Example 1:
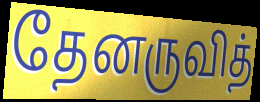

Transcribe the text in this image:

தேனருவித்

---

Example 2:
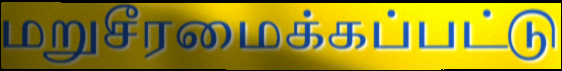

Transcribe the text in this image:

மறுசீரமைக்கப்பட்டு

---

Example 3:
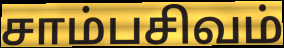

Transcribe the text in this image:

சாம்பசிவம்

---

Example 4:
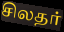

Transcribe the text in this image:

சிலதர்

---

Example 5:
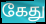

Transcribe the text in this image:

கேது